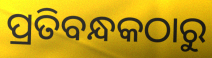
ପ୍ରତିବନ୍ଧକଠାରୁ